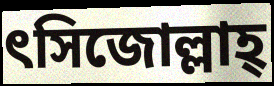
ৎসিজোল্লাহ্